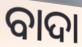
ବାଦା